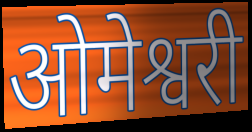
ओमेश्वरी